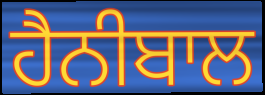
ਹੈਨੀਬਾਲ